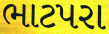
ભાટપરા